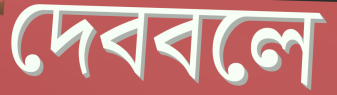
দেববলে